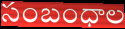
సంబంధాల